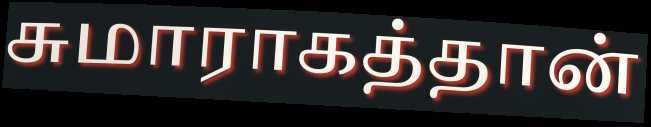
சுமாராகத்தான்